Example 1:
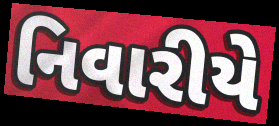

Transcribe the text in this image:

નિવારીયે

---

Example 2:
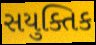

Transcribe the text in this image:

સયુક્તિક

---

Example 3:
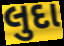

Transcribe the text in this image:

લુદા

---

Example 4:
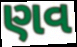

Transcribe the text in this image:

ણવ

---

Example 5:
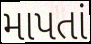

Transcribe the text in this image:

માપતાં